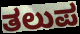
ತಲುಪ